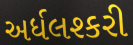
અર્ધલશ્કરી